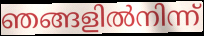
ഞങ്ങളിൽനിന്ന്